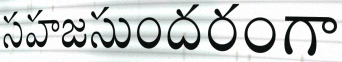
సహజసుందరంగా